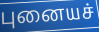
புனையச்